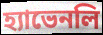
হ্যাভেনলি